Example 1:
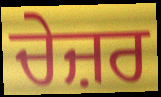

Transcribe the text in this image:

ਚੇਜ਼ਰ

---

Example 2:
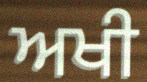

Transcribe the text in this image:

ਅਖੀ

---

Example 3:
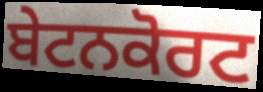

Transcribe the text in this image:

ਬੇਟਨਕੋਰਟ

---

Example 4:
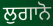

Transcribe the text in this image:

ਲੁਗਾਨੋ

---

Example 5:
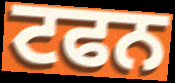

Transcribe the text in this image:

ਟਫਨ